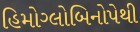
હિમોગ્લોબિનોપેથી